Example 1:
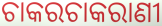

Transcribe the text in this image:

ଚାକରଚାକରାଣୀ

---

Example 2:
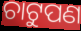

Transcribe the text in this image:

ଚାଟୁପଣ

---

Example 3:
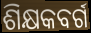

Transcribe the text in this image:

ଶିକ୍ଷକବର୍ଗ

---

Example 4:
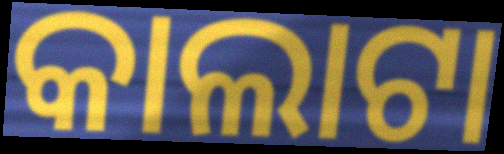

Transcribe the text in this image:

କାଲାଟା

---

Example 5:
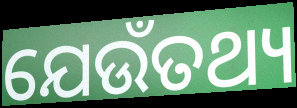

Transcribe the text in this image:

ଯେଉଁତଥ୍ୟ